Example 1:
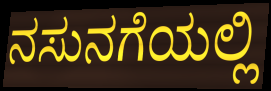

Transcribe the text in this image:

ನಸುನಗೆಯಲ್ಲಿ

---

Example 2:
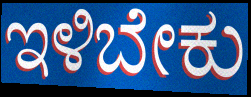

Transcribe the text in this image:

ಇಳಿಬೇಕು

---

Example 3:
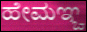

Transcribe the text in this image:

ಹೇಮಞ್ಚ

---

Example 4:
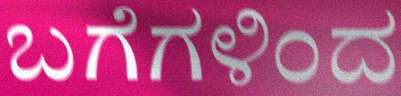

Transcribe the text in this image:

ಬಗೆಗಳಿಂದ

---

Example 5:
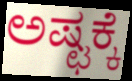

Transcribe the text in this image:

ಅಷ್ಟಕ್ಕೆ